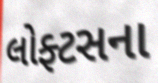
લોફ્ટસના